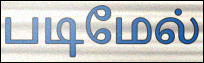
படிமேல்